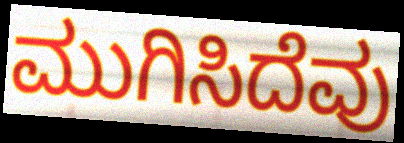
ಮುಗಿಸಿದೆವು